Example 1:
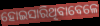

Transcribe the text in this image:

ହୋଇସାରିଥିବାବେଳେ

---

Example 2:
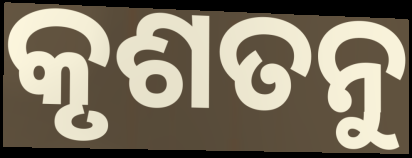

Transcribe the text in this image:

କୃଶତନୁ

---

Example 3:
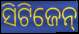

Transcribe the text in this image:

ସିଟିଜେନ୍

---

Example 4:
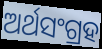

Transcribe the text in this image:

ଅର୍ଥସଂଗ୍ରହ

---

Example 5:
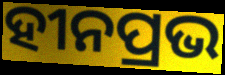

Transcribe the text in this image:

ହୀନପ୍ରଭ